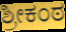
ಶ್ರೀಕಂಠ